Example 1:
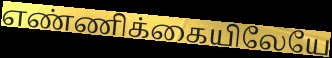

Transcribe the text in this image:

எண்ணிக்கையிலேயே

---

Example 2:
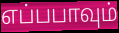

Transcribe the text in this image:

எப்பபாவும்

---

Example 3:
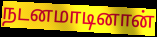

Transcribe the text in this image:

நடனமாடினான்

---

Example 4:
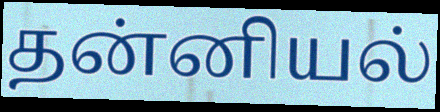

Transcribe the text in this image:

தன்னியல்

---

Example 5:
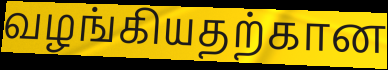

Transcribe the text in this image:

வழங்கியதற்கான